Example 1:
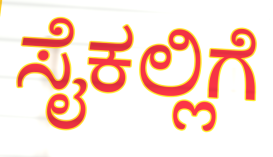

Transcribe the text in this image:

ಸೈಕಲ್ಲಿಗೆ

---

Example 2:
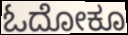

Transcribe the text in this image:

ಓದೋಕೂ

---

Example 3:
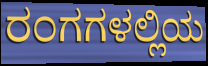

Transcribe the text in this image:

ರಂಗಗಳಲ್ಲಿಯ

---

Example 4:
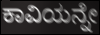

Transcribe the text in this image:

ಕಾವಿಯನ್ನೇ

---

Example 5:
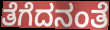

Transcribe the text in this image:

ತೆಗೆದನಂತೆ